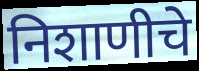
निशाणीचे